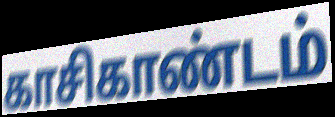
காசிகாண்டம்